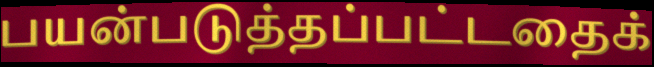
பயன்படுத்தப்பட்டதைக்